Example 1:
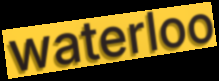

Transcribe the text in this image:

waterloo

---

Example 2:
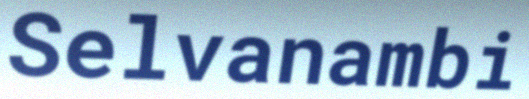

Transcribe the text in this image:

Selvanambi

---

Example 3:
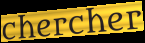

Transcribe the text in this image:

chercher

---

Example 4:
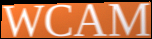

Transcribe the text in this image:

WCAM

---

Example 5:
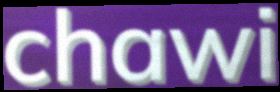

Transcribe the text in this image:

chawi